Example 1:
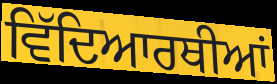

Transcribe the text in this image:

ਵਿੱਦਿਆਰਥੀਆਂ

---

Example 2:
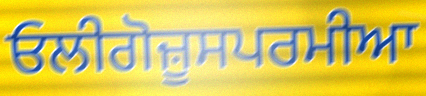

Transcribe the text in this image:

ਓਲੀਗੋਜ਼ੂਸਪਰਮੀਆ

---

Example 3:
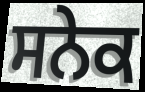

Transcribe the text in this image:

ਸਨੇਕ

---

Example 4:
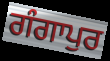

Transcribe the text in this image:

ਗੰਗਾਪੁਰ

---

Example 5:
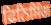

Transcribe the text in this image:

ਫਿਨਿਸਿੰਗ